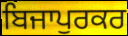
ਬਿਜਾਪੁਰਕਰ